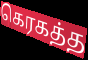
கெரகத்த